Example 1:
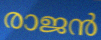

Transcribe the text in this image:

രാജൻ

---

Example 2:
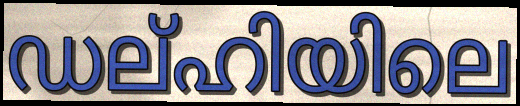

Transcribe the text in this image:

ഡല്ഹിയിലെ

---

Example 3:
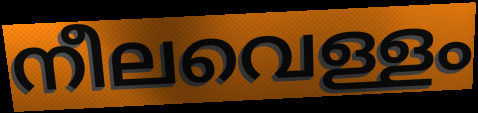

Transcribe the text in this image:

നീലവെള്ളം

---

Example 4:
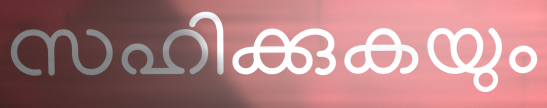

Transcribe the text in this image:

സഹിക്കുകയും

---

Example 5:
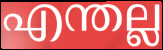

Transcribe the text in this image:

എന്തല്ല